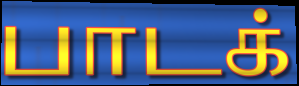
பாடக்